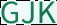
GJK